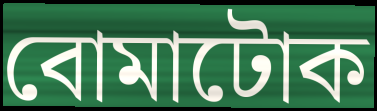
বোমাটোক